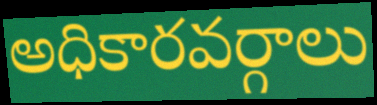
అధికారవర్గాలు